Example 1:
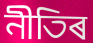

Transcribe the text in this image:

নীতিৰ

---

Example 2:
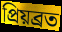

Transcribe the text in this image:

প্ৰিয়ব্ৰত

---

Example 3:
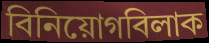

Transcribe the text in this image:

বিনিয়োগবিলাক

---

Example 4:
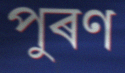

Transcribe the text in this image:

পুৰণ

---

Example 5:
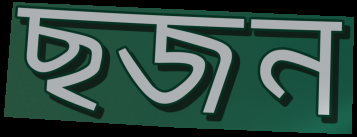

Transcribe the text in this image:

ছজন